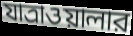
যাত্রাওয়ালার